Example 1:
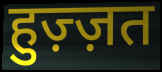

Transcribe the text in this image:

हुज़्ज़त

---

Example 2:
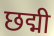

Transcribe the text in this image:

छद्मी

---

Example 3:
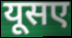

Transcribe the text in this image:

यूसए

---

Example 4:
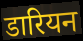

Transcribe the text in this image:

डारियन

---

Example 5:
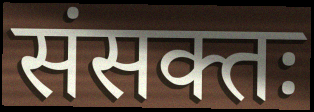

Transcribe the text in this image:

संसक्तः